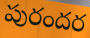
పురందర